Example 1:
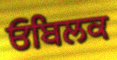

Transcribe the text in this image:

ਓਬਿਲਕ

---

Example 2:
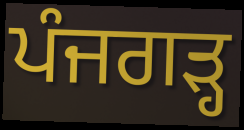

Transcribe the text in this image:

ਪੰਜਗੜ੍ਹ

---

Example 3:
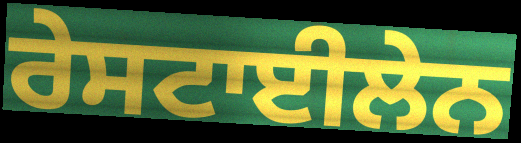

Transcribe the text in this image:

ਰੇਸਟਾਈਲੇਨ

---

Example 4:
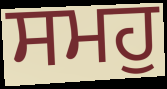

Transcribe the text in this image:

ਸਮਹੁ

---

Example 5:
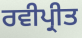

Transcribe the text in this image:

ਰਵੀਪ੍ਰੀਤ